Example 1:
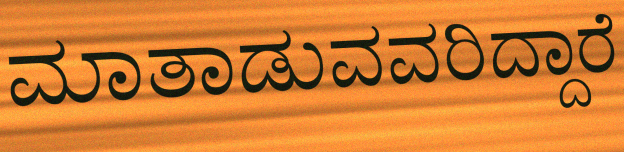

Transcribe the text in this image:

ಮಾತಾಡುವವರಿದ್ದಾರೆ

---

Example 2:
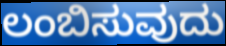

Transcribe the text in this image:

ಲಂಬಿಸುವುದು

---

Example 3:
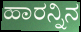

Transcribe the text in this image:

ಹಾರನ್ನಿನ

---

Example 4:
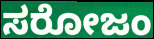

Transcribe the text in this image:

ಸರೋಜಂ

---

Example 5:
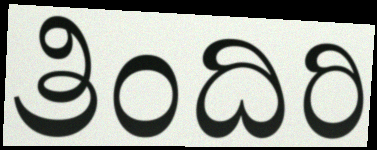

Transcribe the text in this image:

ತಿಂದಿರಿ